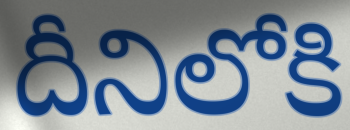
దీనిలోకి